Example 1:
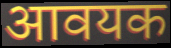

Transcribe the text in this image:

आवयक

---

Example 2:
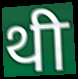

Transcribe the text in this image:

थी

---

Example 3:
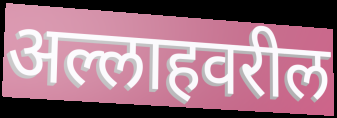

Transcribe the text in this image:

अल्लाहवरील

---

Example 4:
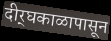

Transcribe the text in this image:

दीर्घकाळापासून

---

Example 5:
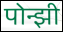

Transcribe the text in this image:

पोन्झी